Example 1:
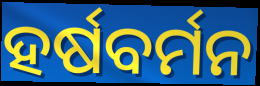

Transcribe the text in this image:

ହର୍ଷବର୍ମନ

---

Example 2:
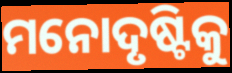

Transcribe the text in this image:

ମନୋଦୃଷ୍ଟିକୁ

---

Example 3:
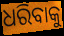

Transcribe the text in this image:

ଧରିବାକୁ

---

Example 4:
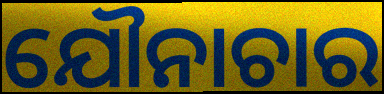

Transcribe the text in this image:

ଯୌନାଚାର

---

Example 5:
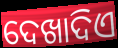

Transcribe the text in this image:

ଦେଖାଦିଏ